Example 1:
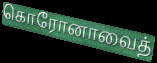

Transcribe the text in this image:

கொரோனாவைத்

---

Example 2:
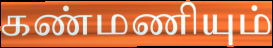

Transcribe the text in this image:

கண்மணியும்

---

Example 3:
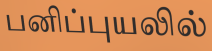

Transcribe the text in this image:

பனிப்புயலில்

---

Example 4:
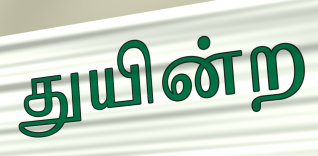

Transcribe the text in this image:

துயின்ற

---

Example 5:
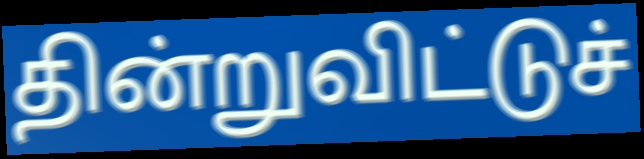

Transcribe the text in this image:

தின்றுவிட்டுச்